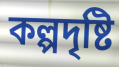
কল্পদৃষ্টি